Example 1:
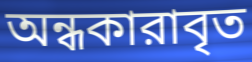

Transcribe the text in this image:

অন্ধকারাবৃত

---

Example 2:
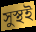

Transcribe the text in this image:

সুস্থই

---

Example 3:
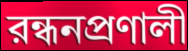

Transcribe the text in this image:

রন্ধনপ্রণালী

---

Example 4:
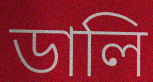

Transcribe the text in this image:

ডালি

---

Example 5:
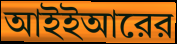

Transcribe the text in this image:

আইইআরের